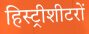
हिस्ट्रीशीटरों